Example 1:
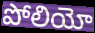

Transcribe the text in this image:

పోలియో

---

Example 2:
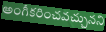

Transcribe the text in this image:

అంగీకరించవచ్చునని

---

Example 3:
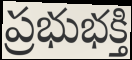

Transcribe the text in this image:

ప్రభుభక్తి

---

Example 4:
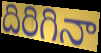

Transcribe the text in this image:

దిరిగినా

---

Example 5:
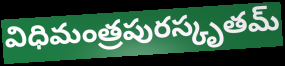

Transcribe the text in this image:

విధిమంత్రపురస్కృతమ్